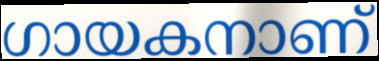
ഗായകനാണ്